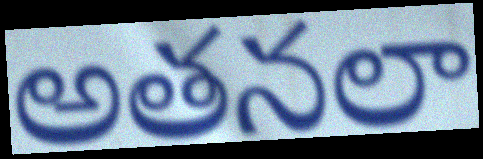
అతనలా